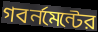
গবর্নমেন্টের